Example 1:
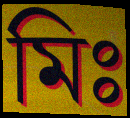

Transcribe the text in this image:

মিঃ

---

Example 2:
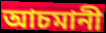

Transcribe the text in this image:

আচমানী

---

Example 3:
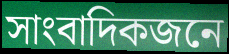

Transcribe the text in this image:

সাংবাদিকজনে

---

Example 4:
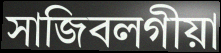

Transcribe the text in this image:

সাজিবলগীয়া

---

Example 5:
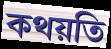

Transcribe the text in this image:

কথয়তি